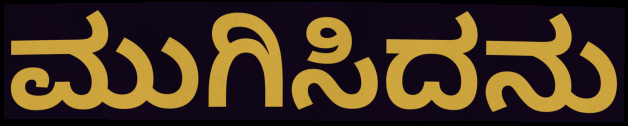
ಮುಗಿಸಿದನು